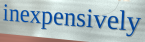
inexpensively